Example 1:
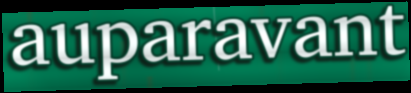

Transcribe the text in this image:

auparavant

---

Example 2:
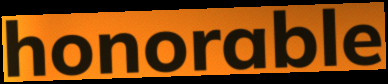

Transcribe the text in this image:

honorable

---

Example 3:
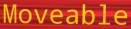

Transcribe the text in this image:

Moveable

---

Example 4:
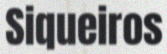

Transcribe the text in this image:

Siqueiros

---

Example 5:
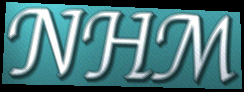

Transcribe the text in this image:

NHM